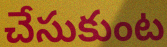
చేసుకుంట